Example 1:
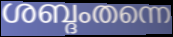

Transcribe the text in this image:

ശബ്ദംതന്നെ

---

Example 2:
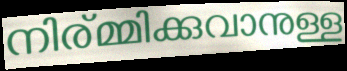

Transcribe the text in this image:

നിര്മ്മിക്കുവാനുള്ള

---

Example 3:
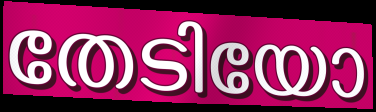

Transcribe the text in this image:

തേടിയോ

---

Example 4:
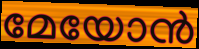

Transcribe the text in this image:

മേയോൻ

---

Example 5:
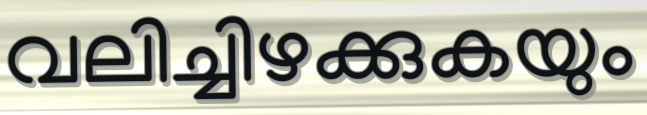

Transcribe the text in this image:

വലിച്ചിഴക്കുകയും